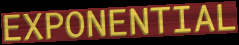
EXPONENTIAL